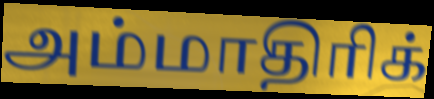
அம்மாதிரிக்